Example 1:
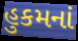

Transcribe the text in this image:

હુકમનાં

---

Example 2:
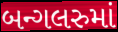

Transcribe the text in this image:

બન્ગલરુમાં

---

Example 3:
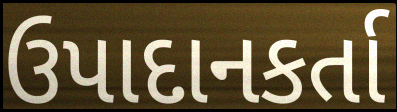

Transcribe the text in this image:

ઉપાદાનકર્તા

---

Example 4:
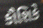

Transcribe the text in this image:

કૌશિકે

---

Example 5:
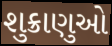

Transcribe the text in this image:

શુક્રાણુઓ